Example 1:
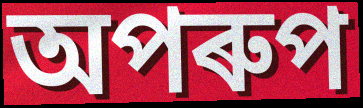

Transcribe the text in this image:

অপৰুপ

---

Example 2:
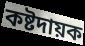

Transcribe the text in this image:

কষ্টদায়ক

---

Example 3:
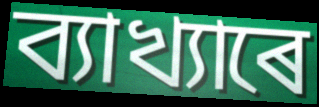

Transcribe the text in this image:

ব্যাখ্যাৰে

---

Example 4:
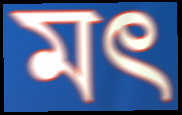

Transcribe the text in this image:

মৎ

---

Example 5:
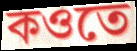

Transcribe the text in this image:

কওতে